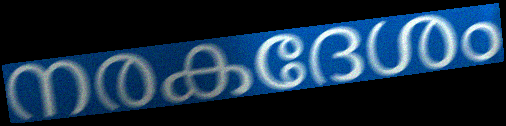
നരകദേശം